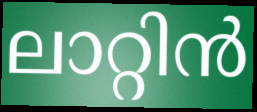
ലാറ്റിൻ